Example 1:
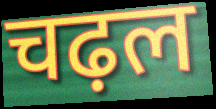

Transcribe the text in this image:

चढ़ल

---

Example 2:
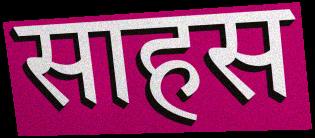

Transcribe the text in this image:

साहस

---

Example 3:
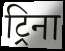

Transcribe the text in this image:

ट्रिना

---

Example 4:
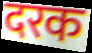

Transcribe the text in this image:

दरक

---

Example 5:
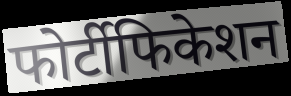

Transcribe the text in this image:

फोर्टीफिकेशन